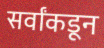
सर्वांकडून